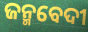
ଜନ୍ମବେଦୀ